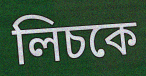
লিচকে